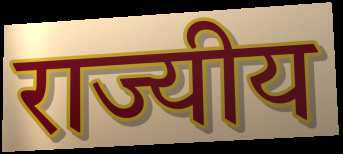
राज्यीय